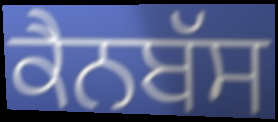
ਕੈਨਬੱਸ